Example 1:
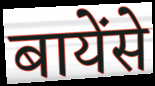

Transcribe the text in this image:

बायेंसे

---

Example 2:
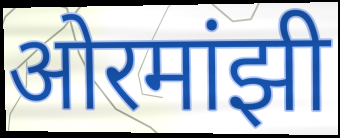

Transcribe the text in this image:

ओरमांझी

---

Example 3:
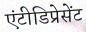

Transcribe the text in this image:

एंटीडिप्रेसेंट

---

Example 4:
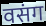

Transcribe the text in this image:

वसंग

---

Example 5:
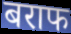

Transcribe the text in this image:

बराफ